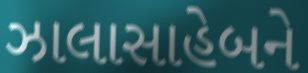
ઝાલાસાહેબને